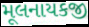
મૂલનાયકજી